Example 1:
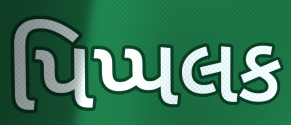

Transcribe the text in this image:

પિપ્પલક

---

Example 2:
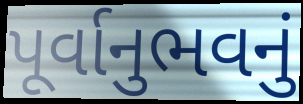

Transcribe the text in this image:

પૂર્વાનુભવનું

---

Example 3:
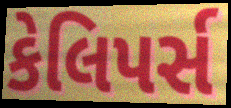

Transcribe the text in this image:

કેલિપર્સ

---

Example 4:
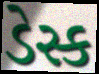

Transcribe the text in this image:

ડેસ્ક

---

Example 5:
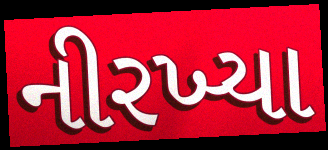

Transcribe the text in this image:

નીરખ્યા